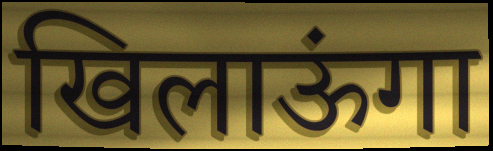
खिलाऊंगा